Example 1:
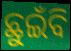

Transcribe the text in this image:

ଛୁଇଁବି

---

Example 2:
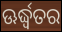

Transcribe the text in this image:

ଊର୍ଦ୍ଧ୍ଵତର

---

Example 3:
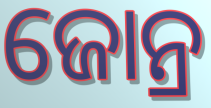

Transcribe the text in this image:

ଜୋନ୍ର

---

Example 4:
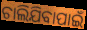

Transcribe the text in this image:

ଚାଲିଯିବାପାଇଁ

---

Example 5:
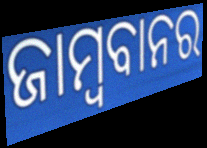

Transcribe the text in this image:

ଜାମ୍ବବାନର